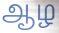
ஆழ